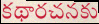
కథారచనకు